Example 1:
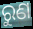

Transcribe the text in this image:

ରୁଣ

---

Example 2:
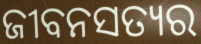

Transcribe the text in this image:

ଜୀବନସତ୍ୟର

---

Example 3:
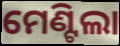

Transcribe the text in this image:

ମେଣ୍ଟିଲା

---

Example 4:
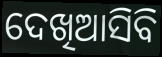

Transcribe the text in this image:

ଦେଖିଆସିବି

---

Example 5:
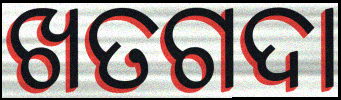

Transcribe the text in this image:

ଖତଗଦା